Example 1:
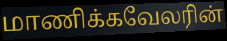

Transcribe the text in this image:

மாணிக்கவேலரின்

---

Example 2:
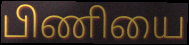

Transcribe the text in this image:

பிணியை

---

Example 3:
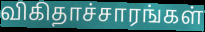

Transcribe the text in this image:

விகிதாச்சாரங்கள்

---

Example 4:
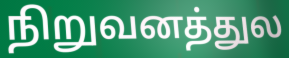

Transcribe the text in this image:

நிறுவனத்துல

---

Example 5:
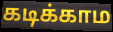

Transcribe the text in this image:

கடிக்காம